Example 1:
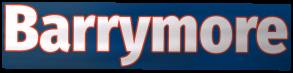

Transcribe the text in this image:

Barrymore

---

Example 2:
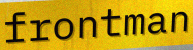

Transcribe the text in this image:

frontman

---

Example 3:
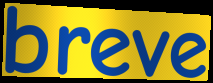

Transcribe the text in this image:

breve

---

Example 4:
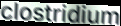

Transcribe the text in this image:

clostridium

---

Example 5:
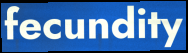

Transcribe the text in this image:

fecundity